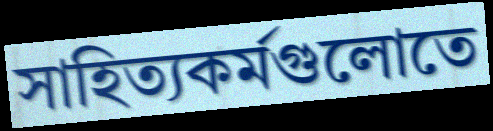
সাহিত্যকর্মগুলোতে